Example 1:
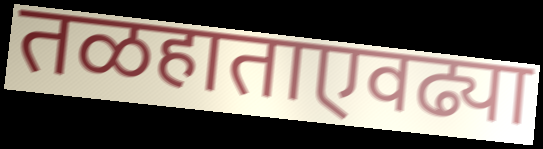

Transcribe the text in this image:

तळहाताएवढ्या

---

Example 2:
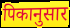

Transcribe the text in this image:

पिकानुसार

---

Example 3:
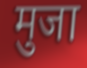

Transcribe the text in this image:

मुजा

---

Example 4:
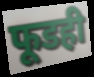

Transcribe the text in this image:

फूडही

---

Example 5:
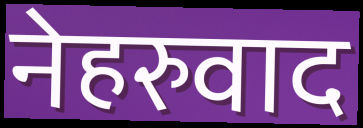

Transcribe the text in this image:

नेहरुवाद